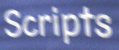
Scripts